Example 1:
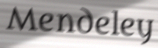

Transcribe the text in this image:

Mendeley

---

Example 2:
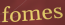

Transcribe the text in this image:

fomes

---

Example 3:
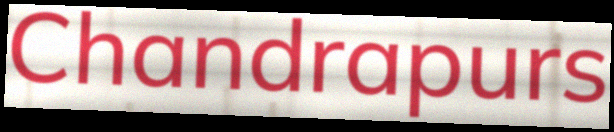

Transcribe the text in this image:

Chandrapurs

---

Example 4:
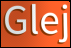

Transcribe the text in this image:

Glej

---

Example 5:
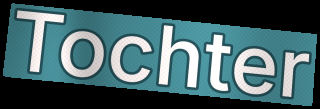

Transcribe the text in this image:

Tochter